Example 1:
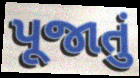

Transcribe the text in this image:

પૂજાતું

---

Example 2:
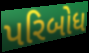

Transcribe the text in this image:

પરિબોધ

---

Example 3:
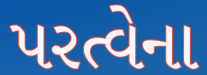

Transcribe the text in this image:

પરત્વેના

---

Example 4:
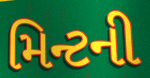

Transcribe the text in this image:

મિન્ટની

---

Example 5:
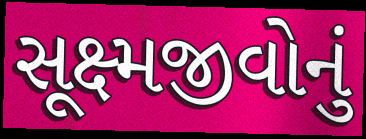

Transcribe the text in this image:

સૂક્ષ્મજીવોનું